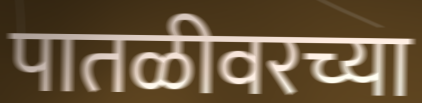
पातळीवरच्या